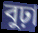
বুঢ়া